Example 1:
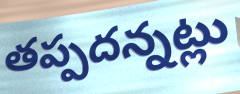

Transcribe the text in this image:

తప్పదన్నట్లు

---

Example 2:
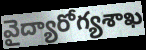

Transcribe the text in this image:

వైద్యారోగ్యశాఖ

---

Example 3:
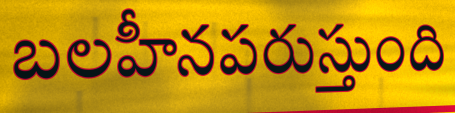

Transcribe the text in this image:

బలహీనపరుస్తుంది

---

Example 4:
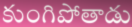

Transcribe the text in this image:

కుంగిపోతాడు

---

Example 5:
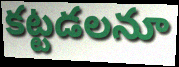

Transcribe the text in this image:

కట్టడలనూ